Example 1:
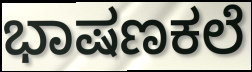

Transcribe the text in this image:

ಭಾಷಣಕಲೆ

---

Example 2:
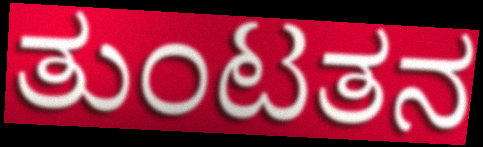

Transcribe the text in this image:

ತುಂಟತನ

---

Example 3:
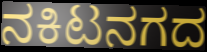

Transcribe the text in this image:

ನಕಿಟನಗದ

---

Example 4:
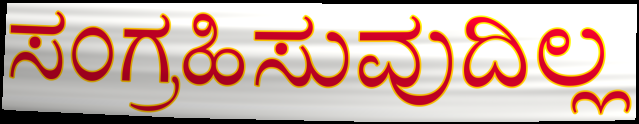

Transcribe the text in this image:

ಸಂಗ್ರಹಿಸುವುದಿಲ್ಲ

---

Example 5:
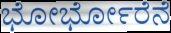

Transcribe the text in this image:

ಭೋರ್ಭೋರೆನೆ